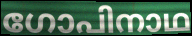
ഗോപിനാഥ